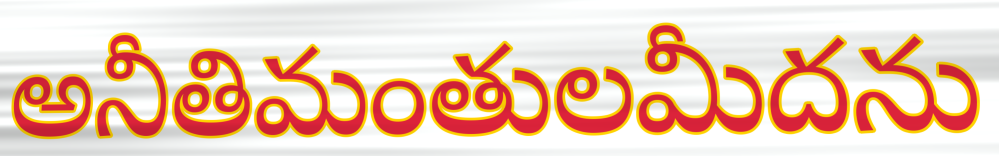
అనీతిమంతులమీదను